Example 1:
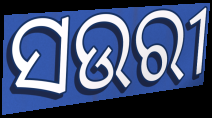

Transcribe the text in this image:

ସଉରୀ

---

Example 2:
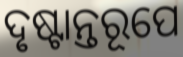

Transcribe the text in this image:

ଦୃଷ୍ଟାନ୍ତରୂପେ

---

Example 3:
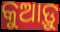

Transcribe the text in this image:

କୁଆଡ଼ୁ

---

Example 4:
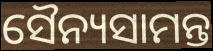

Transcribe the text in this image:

ସୈନ୍ୟସାମନ୍ତ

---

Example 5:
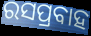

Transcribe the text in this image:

ରସପ୍ରବାହ